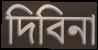
দিবিনা